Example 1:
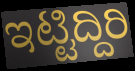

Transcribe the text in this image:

ಇಟ್ಟಿದ್ದಿರಿ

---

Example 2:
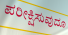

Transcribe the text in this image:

ಪರೀಕ್ಷಿಸುವುದೂ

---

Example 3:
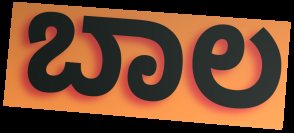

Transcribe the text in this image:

ಬಾಲ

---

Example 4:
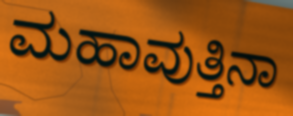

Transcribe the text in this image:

ಮಹಾವುತ್ತಿನಾ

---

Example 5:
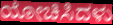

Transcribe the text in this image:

ಯೋಚಿಸಿದಳು